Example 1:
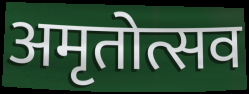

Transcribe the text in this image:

अमृतोत्सव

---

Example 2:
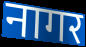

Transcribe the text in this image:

नागर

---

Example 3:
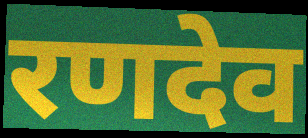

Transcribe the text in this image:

रणदेव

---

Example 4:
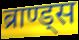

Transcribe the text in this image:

ब्राण्‍ड्स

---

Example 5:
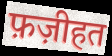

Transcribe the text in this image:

फ़ज़ीहत